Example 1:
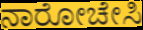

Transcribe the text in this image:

ನಾರೋಚೇಸಿ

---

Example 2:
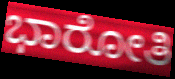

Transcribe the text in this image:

ಭಾರೋತಿ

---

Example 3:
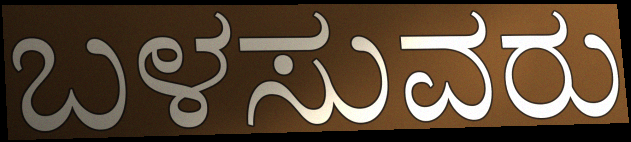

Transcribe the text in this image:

ಬಳಸುವರು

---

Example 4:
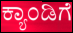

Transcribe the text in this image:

ಕ್ಯಾಂಡಿಗೆ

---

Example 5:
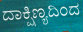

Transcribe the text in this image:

ದಾಕ್ಷಿಣ್ಯದಿಂದ